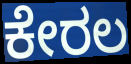
ಕೇರಲ